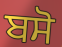
ਬਸੋ